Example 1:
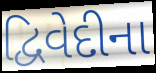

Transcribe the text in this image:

દ્વિવેદીના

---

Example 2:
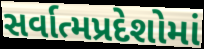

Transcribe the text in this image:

સર્વાત્મપ્રદેશોમાં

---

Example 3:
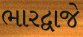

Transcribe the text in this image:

ભારદ્વાજે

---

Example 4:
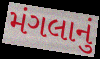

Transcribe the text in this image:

મંગલાનું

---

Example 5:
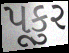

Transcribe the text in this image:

પૂકુર